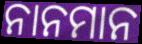
ନାନମାନ